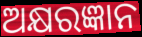
ଅକ୍ଷରଜ୍ଞାନ